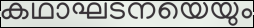
കഥാഘടനയെയും